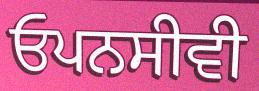
ਓਪਨਸੀਵੀ